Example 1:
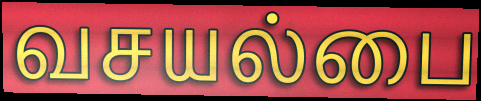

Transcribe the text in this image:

வசயல்பை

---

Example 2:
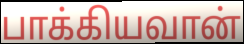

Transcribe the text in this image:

பாக்கியவான்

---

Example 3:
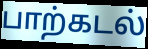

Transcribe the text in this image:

பாற்கடல்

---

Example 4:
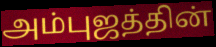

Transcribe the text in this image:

அம்புஜத்தின்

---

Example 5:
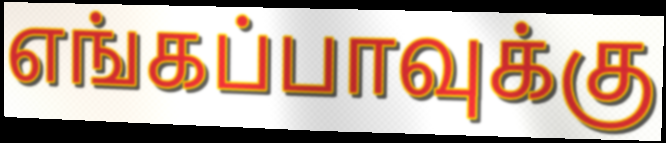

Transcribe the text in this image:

எங்கப்பாவுக்கு